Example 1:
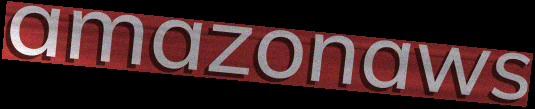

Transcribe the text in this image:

amazonaws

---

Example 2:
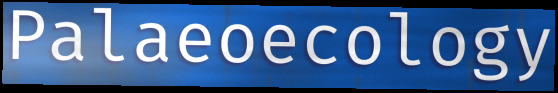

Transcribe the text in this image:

Palaeoecology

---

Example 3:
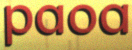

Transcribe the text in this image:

paoa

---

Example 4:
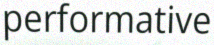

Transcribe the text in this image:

performative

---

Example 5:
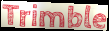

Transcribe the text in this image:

Trimble